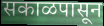
सकाळपासून